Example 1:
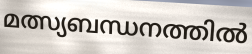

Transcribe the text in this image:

മത്സ്യബന്ധനത്തിൽ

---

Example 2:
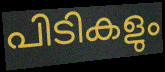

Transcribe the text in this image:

പിടികളും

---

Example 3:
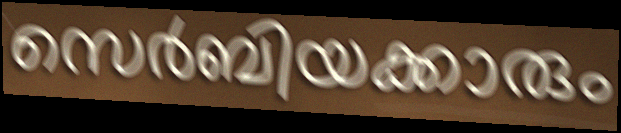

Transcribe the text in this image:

സെർബിയക്കാരും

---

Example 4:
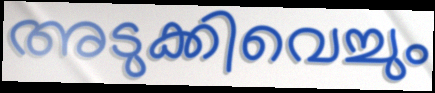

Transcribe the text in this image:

അടുക്കിവെച്ചും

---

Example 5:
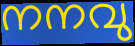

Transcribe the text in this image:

നനവു